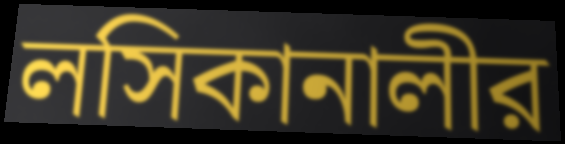
লসিকানালীর